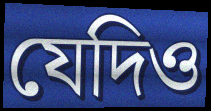
যেদিও